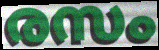
രസം